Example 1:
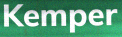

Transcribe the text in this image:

Kemper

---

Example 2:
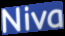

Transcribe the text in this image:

Niva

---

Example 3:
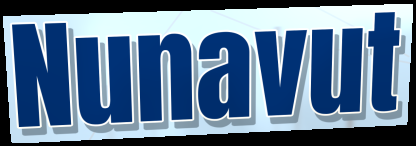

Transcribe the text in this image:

Nunavut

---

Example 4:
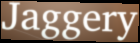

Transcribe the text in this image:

Jaggery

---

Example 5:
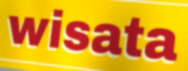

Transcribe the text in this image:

wisata